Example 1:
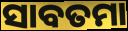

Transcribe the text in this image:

ସାବତମା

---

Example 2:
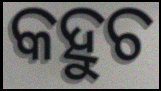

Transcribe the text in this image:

କହୁଚ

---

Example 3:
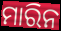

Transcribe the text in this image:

ମାରିନ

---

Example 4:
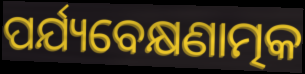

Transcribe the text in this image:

ପର୍ଯ୍ୟବେକ୍ଷଣାତ୍ମକ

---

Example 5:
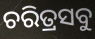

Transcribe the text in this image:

ଚରିତ୍ରସବୁ